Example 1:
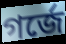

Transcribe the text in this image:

গর্জে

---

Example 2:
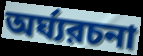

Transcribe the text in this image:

অর্ঘ্যরচনা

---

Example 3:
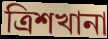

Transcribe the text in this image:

ত্রিশখানা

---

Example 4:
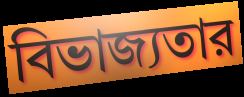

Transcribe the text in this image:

বিভাজ্যতার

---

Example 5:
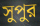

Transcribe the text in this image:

সুপুর